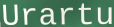
Urartu